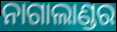
ନାଗାଲାଣ୍ଡର